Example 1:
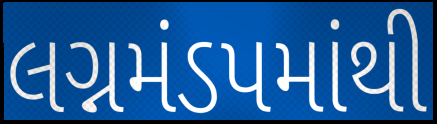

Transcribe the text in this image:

લગ્નમંડપમાંથી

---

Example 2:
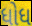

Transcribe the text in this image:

ધોધ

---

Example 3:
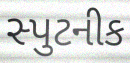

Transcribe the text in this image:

સ્પુટનીક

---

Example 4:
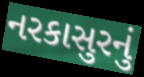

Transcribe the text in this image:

નરકાસુરનું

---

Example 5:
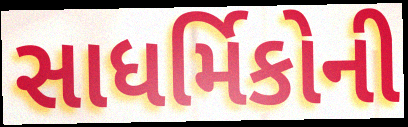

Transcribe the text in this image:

સાધર્મિકોની